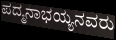
ಪದ್ಮನಾಭಯ್ಯನವರು